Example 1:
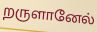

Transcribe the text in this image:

றருளானேல்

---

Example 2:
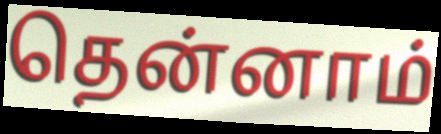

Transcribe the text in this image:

தென்னாம்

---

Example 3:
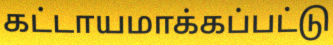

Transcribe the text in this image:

கட்டாயமாக்கப்பட்டு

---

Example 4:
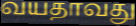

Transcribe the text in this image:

வயதாவது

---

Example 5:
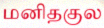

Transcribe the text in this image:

மனிதகுல